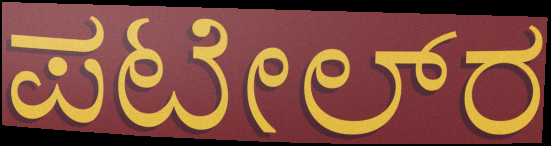
ಪಟೇಲ್‌ರ